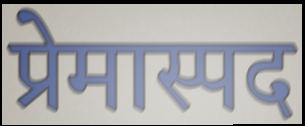
प्रेमास्पद